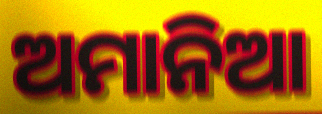
ଅମାନିଆ